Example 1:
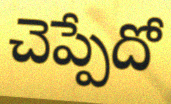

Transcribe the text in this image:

చెప్పేదో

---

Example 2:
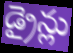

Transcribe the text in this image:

డ్రైన్లు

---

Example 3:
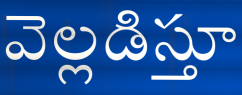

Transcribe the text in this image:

వెల్లడిస్తూ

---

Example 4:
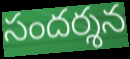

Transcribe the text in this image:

సందర్శన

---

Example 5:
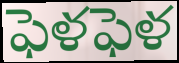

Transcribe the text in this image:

ఫెళఫెళ